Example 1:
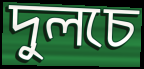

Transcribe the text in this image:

দুলচে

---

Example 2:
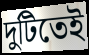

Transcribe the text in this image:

দুটিতেই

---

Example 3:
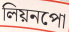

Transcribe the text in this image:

লিয়নপো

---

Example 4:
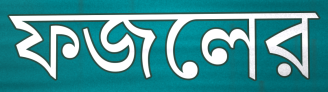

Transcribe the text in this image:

ফজলের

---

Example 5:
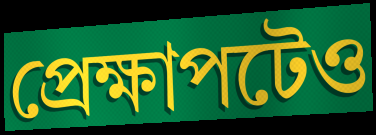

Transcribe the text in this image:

প্রেক্ষাপটেও